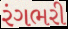
રંગભરી